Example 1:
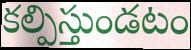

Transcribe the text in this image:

కల్పిస్తుండటం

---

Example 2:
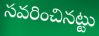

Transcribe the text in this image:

సవరించినట్టు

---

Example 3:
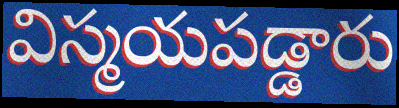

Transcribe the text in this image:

విస్మయపడ్డారు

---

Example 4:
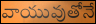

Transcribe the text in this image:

వాయువుతోనే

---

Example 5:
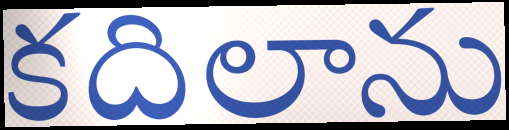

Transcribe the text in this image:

కదిలాను